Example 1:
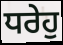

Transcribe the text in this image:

ਧਰੇਹੁ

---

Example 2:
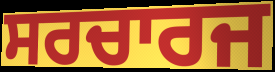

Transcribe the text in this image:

ਸਰਚਾਰਜ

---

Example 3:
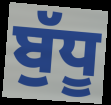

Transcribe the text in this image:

ਬੁੱਧੂ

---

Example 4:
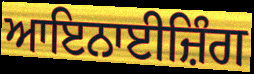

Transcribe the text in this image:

ਆਇਨਾਈਜ਼ਿੰਗ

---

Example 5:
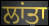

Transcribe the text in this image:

ਲਾਂਤਾ